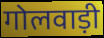
गोलवाड़ी